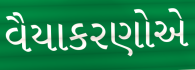
વૈયાકરણોએ